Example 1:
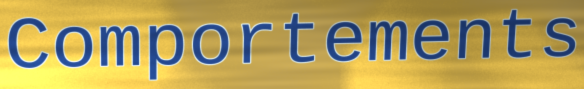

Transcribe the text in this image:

Comportements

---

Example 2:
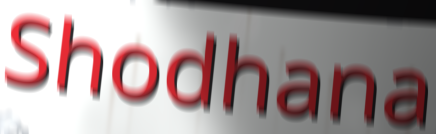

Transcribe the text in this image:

Shodhana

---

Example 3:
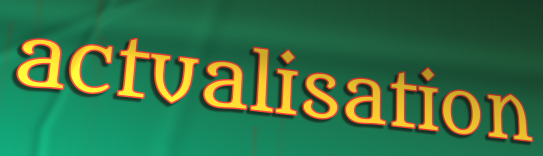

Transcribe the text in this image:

actualisation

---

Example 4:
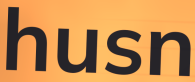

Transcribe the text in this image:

husn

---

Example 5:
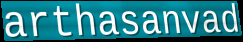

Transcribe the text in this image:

arthasanvad